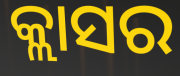
କ୍ଲାସର